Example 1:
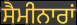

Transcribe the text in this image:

ਸੈਮੀਨਾਰਾਂ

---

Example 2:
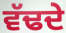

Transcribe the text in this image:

ਵੱਢਦੇ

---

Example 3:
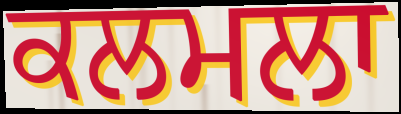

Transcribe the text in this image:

ਕਲਮਲਾ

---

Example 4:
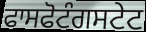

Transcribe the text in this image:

ਫਾਸਫੋਟੰਗਸਟੇਟ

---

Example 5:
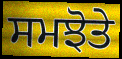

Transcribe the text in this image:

ਸਮਝੋਤੇ